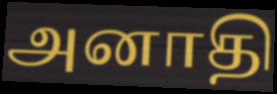
அனாதி